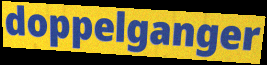
doppelganger